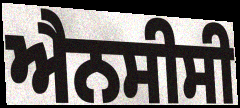
ਐਨਸੀਸੀ